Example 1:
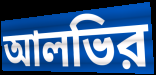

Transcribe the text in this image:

আলভির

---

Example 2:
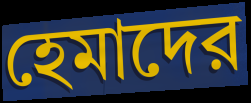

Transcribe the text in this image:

হেমাদের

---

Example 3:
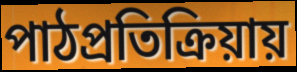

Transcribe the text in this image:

পাঠপ্রতিক্রিয়ায়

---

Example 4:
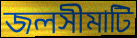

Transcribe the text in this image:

জলসীমাটি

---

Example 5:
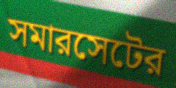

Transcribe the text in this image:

সমারসেটের